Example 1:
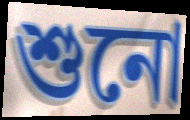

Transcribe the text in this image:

শুনো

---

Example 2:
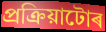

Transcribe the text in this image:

প্ৰক্ৰিয়াটোৰ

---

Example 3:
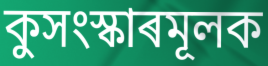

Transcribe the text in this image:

কুসংস্কাৰমূলক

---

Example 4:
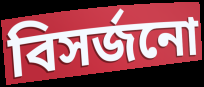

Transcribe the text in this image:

বিসৰ্জনো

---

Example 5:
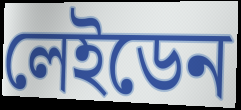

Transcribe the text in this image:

লেইডেন